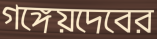
গঙ্গেয়দেবের